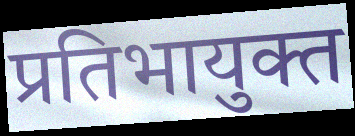
प्रतिभायुक्त